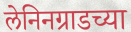
लेनिनग्राडच्या